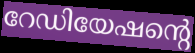
റേഡിയേഷന്റെ